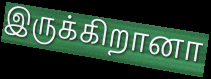
இருக்கிறானா